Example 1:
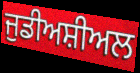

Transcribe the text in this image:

ਜੁਡੀਅਸ਼ੀਅਲ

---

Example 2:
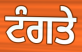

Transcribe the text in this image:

ਟੰਗਤੇ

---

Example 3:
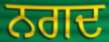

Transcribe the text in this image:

ਨਗਦ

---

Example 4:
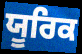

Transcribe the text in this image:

ਯੂਰਿਕ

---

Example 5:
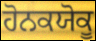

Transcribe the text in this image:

ਹੋਨਕਯੋਕੂ